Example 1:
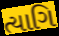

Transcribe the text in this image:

ત્યાગિ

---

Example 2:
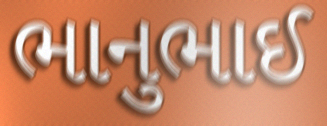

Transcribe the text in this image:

ભાનુભાઈ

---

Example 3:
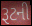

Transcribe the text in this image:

રૂટની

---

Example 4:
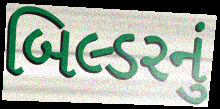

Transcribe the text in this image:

બિલ્ડરનું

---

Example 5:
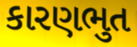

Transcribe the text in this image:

કારણભુત